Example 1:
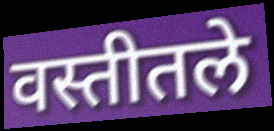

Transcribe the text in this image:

वस्तीतले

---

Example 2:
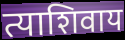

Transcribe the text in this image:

त्याशिवाय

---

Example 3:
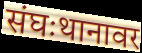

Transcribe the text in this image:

संघःथानावर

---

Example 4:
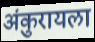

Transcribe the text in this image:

अंकुरायला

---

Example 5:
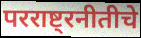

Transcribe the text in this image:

परराष्ट्रनीतीचे